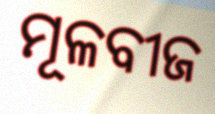
ମୂଳବୀଜ